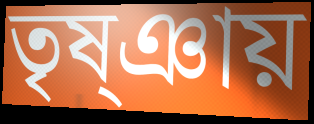
তৃষ্ঞায়